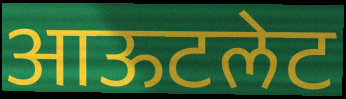
आऊटलेट